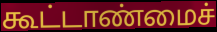
கூட்டாண்மைச்